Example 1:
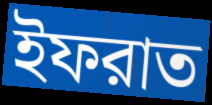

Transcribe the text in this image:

ইফরাত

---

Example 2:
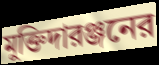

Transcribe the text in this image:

মুক্তিদারঞ্জনের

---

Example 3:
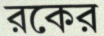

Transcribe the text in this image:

রকের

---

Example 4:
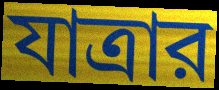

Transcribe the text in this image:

যাত্রার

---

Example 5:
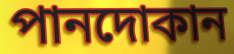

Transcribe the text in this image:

পানদোকান